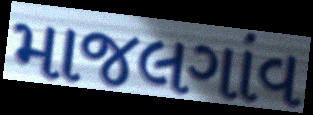
માજલગાંવ